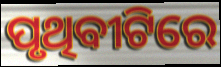
ପୃଥିବୀଟିରେ